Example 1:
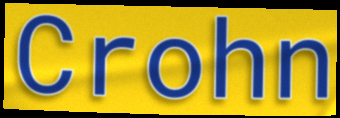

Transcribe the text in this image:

Crohn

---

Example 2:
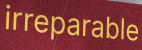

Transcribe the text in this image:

irreparable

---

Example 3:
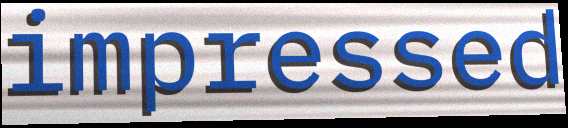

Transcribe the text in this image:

impressed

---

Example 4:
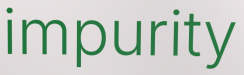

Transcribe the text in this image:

impurity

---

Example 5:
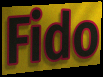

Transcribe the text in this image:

Fido